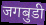
जगबुडी